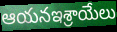
ఆయనఇశ్రాయేలు